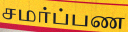
சமர்ப்பண